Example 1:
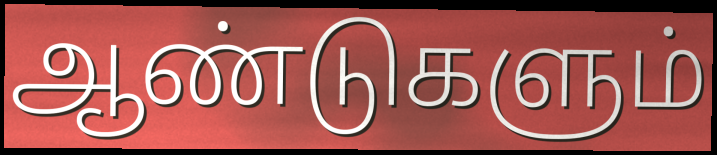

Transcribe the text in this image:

ஆண்டுகளும்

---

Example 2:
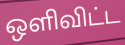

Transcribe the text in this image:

ஒளிவிட்ட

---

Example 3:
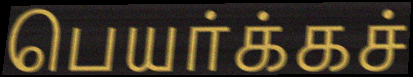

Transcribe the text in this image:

பெயர்க்கச்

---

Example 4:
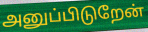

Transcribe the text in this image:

அனுப்பிடுறேன்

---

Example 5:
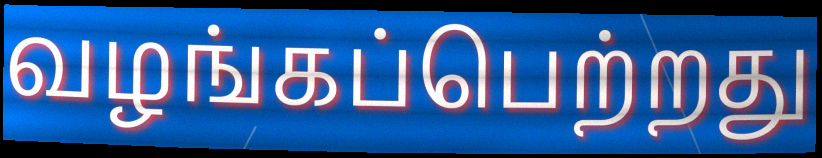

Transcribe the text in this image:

வழங்கப்பெற்றது